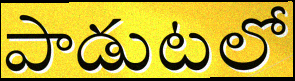
పాడుటలో